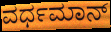
ವರ್ಧಮಾನ್